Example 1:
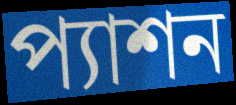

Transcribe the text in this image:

প্যাশন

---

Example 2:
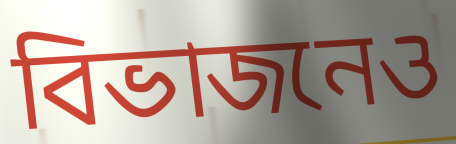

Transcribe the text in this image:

বিভাজনেও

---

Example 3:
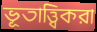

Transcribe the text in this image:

ভূতাত্ত্বিকরা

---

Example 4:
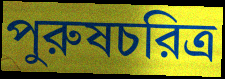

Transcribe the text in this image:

পুরুষচরিত্র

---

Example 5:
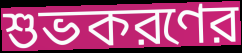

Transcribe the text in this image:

শুভকরণের